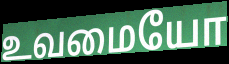
உவமையோ